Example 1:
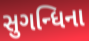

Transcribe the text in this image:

સુગન્ધિના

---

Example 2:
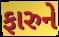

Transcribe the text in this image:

ફારુને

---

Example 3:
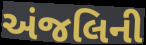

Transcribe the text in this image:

અંજલિની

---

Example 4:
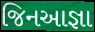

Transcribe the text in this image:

જિનઆજ્ઞા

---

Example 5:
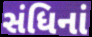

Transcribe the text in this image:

સંધિનાં